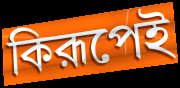
কিরূপেই